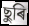
ছুৰি